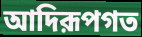
আদিরূপগত